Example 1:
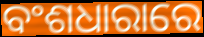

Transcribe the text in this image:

ବଂଶଧାରାରେ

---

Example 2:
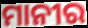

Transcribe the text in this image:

ମାନୀର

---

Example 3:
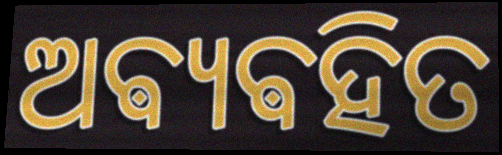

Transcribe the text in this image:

ଅଵ୍ୟଵହିତ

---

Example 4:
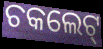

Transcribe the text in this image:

ଚକଲେଟ୍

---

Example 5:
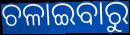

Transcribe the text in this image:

ଚଳାଇବାରୁ